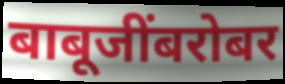
बाबूजींबरोबर